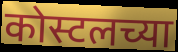
कोस्टलच्या